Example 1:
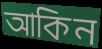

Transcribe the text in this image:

আকিন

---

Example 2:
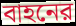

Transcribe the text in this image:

বাহনের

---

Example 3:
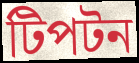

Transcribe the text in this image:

টিপটন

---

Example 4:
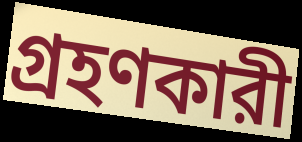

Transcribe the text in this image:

গ্রহণকারী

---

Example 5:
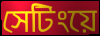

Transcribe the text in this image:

সেটিংয়ে